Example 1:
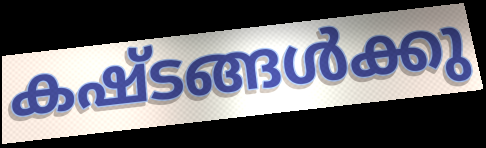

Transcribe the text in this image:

കഷ്ടങ്ങൾക്കു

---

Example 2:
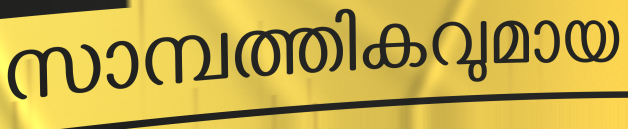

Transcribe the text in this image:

സാമ്പത്തികവുമായ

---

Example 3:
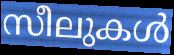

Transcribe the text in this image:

സീലുകൾ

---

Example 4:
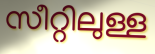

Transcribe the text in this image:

സീറ്റിലുള്ള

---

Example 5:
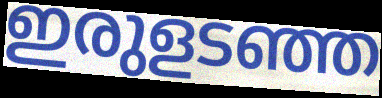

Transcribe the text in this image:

ഇരുളടഞ്ഞ